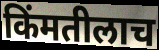
किंमतीलाच